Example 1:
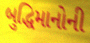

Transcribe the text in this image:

બુદ્ધિમાનોની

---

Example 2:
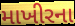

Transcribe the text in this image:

માખીરના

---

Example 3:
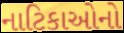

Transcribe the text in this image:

નાટિકાઓનો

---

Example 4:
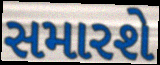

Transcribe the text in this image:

સમારશે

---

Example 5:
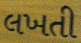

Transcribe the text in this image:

લખતી